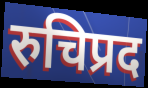
रुचिप्रद